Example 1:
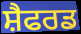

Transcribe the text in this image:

ਸ਼ੈਫਰਡ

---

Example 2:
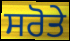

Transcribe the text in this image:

ਸਰੋਤੇ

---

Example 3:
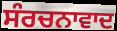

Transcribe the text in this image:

ਸੰਰਚਨਾਵਾਦ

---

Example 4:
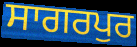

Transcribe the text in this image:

ਸਾਗਰਪੁਰ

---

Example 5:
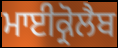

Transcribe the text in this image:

ਮਾਈਕ੍ਰੋਲੈਬ